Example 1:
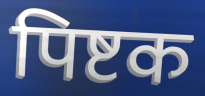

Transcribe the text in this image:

पिष्टक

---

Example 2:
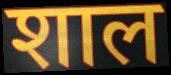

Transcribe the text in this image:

शाल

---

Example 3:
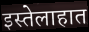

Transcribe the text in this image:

इस्तेलाहात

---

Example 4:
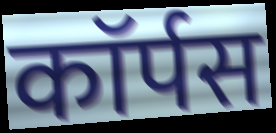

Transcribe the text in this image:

कॉर्पस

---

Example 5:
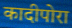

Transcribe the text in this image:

कादीपोरा